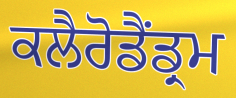
ਕਲੈਰੋਡੈਂਡ੍ਰਮ